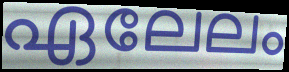
ഏലേലം